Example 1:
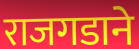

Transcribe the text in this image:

राजगडाने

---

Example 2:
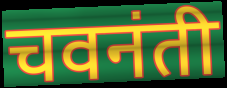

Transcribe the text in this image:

चवनंती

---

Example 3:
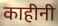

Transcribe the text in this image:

काहीनी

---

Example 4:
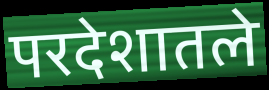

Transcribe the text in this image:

परदेशातले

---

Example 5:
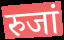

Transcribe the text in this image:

रुजां